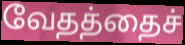
வேதத்தைச்